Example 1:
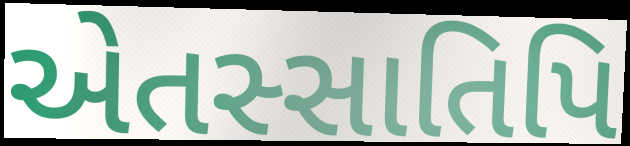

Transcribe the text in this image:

એતસ્સાતિપિ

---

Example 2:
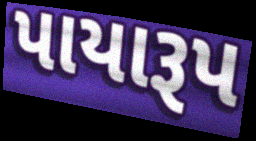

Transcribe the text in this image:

પાયારૂપ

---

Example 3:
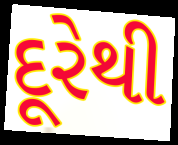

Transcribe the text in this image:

દૂરેથી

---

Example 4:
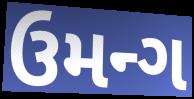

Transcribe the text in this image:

ઉમન્ગ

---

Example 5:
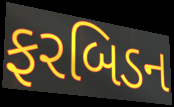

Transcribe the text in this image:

ફરબિડન